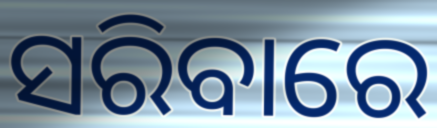
ସରିବାରେ